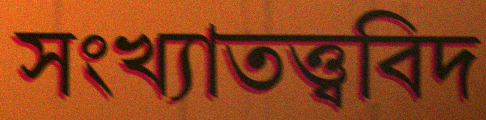
সংখ্যাতত্ত্ববিদ